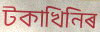
টকাখিনিৰ